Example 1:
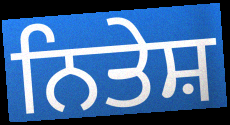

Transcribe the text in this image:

ਨਿਤੇਸ਼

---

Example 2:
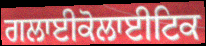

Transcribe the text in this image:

ਗਲਾਈਕੋਲਾਈਟਿਕ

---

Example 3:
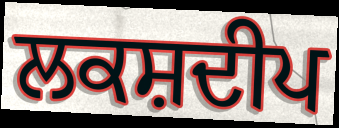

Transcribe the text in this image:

ਲਕਸ਼ਦੀਪ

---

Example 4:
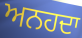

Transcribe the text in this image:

ਅਨਹਦਾ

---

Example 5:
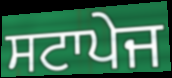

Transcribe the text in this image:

ਸਟਾਪੇਜ